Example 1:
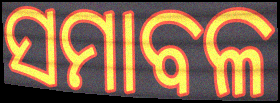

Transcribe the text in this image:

ସମାବଳ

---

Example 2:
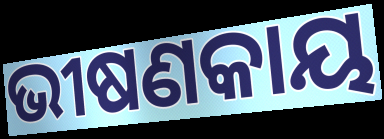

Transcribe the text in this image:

ଭୀଷଣକାୟ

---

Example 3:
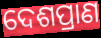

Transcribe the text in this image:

ଦେଶପ୍ରାଣ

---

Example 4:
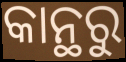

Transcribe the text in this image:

କାନ୍ଥରୁ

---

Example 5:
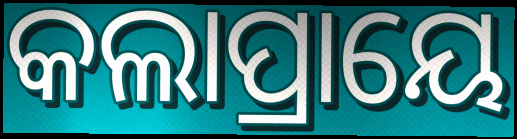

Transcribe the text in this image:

କଲାପ୍ରାୟେ